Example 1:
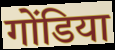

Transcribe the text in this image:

गोंडिया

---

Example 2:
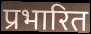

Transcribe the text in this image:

प्रभारित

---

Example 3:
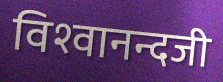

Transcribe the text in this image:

विश्वानन्दजी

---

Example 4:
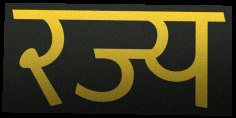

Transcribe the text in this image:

रज्य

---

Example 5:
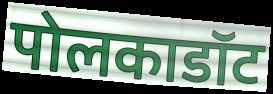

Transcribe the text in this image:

पोलकाडॉट